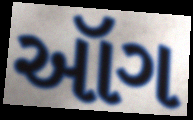
ઑગ